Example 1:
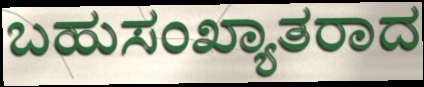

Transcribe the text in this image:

ಬಹುಸಂಖ್ಯಾತರಾದ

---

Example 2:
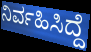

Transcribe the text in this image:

ನಿರ್ವಹಿಸಿದ್ದೆ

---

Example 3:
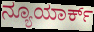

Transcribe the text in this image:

ನ್ಯೂಯಾರ್ಕ್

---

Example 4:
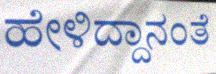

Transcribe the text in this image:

ಹೇಳಿದ್ದಾನಂತೆ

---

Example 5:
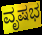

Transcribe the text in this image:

ವೃಷಭ